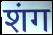
शंग